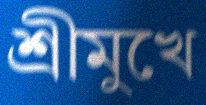
শ্রীমুখে